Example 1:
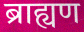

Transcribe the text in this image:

ब्राह्यण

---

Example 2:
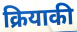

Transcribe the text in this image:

क्रियाकी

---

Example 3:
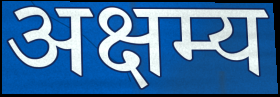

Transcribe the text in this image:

अक्षम्‍य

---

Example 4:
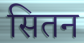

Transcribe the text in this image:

सितन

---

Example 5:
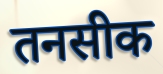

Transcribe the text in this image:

तनसीक